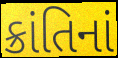
ક્રાંતિનાં